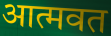
आत्मवत